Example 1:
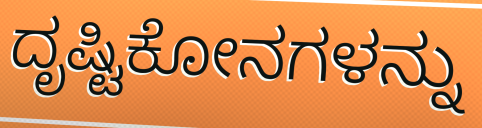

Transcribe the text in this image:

ದೃಷ್ಟಿಕೋನಗಳನ್ನು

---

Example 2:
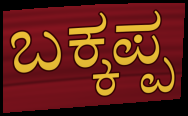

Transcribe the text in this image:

ಬಕ್ಕಪ್ಪ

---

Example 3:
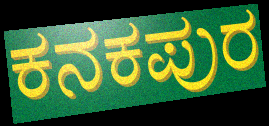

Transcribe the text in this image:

ಕನಕಪುರ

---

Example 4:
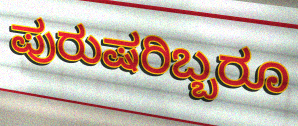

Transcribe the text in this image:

ಪುರುಷರಿಬ್ಬರೂ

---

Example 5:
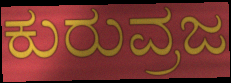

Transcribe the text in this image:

ಕುರುವ್ರಜ